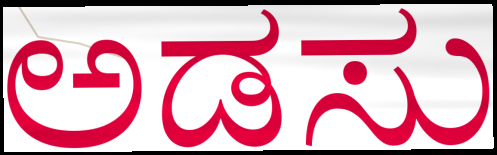
ಅಡಸು